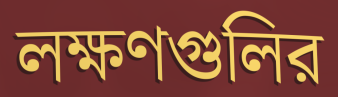
লক্ষণগুলির